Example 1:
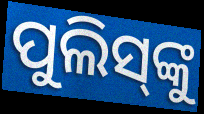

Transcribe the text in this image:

ପୁଲିସ୍‌ଙ୍କୁ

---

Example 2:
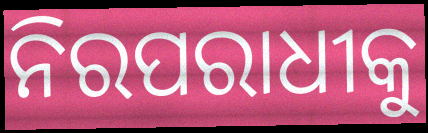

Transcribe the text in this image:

ନିରପରାଧୀକୁ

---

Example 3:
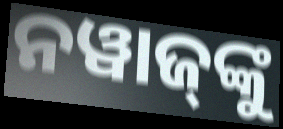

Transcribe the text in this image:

ନୱାଜ୍‍ଙ୍କୁ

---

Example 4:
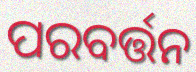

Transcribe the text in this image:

ପରବର୍ତ୍ତନ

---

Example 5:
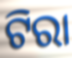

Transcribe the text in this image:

ଟିରା